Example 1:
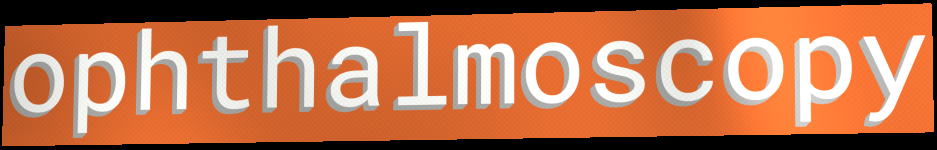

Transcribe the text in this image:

ophthalmoscopy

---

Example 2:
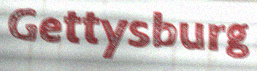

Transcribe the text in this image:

Gettysburg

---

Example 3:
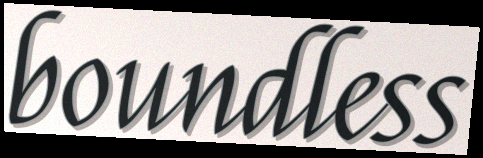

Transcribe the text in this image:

boundless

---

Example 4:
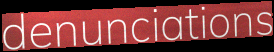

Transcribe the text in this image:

denunciations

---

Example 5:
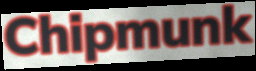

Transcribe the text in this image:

Chipmunk